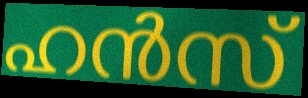
ഹൻസ്